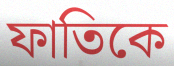
ফাতিকে